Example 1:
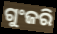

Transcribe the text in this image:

ଗୁଂଜରି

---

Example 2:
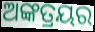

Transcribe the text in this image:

ଅଙ୍କତ୍ରୟର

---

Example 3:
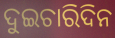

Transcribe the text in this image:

ଦୁଇଚାରିଦିନ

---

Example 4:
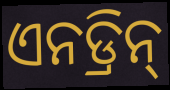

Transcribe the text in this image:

ଏନଡ୍ରିନ୍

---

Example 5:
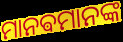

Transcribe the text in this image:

ମାନଵମାନଙ୍କ